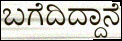
ಬಗೆದಿದ್ದಾನೆ